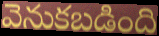
వెనుకబడింది